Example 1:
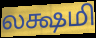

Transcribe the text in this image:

லக்ஷமி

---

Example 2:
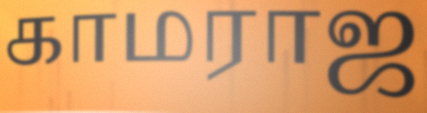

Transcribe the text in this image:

காமராஜ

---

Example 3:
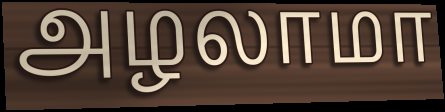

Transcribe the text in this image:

அழலாமா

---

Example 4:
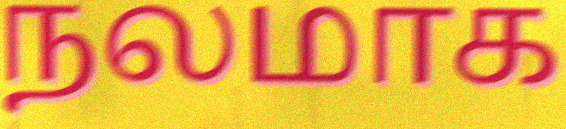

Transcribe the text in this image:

நலமாக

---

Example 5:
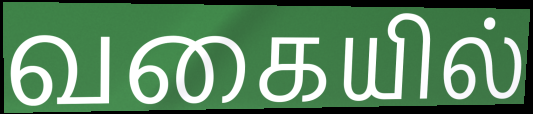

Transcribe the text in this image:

வகையில்